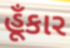
હૂઁકાર